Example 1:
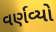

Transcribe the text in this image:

વર્ણવ્યો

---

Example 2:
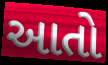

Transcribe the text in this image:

આતો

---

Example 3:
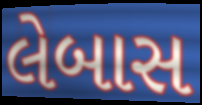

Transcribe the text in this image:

લેબાસ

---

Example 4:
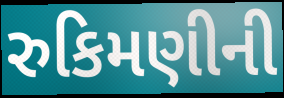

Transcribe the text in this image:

રુકિમણીની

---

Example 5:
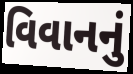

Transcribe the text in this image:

વિવાનનું